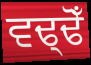
ਵਢ੍ਢੋਁ